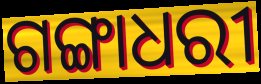
ଗଙ୍ଗାଧରୀ